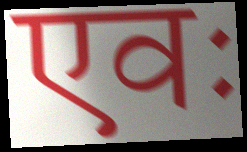
एवः